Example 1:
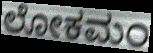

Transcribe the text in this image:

ಲೋಕಮಂ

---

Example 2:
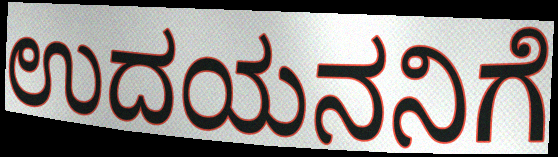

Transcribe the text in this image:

ಉದಯನನಿಗೆ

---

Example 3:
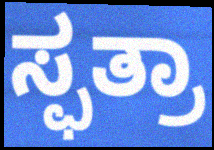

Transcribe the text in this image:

ಸ್ಫತ್ರಾ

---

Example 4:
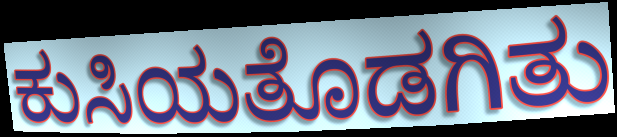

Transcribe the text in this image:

ಕುಸಿಯತೊಡಗಿತು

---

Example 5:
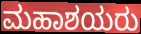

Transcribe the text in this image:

ಮಹಾಶಯರು